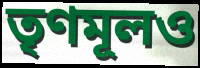
তৃণমূলও